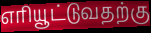
எரியூட்டுவதற்கு